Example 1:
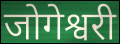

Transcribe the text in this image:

जोगेश्वरी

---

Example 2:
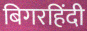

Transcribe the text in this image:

बिगरहिंदी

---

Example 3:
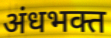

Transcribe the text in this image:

अंधभक्त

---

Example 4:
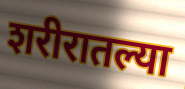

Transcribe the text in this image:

शरीरातल्या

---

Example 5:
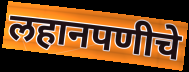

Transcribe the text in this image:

लहानपणीचे